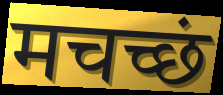
मचच्छं